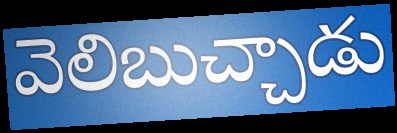
వెలిబుచ్చాడు